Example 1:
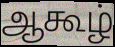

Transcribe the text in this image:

ஆகூழ்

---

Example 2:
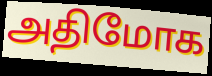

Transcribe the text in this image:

அதிமோக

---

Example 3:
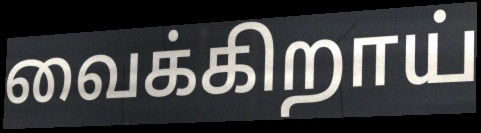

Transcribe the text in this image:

வைக்கிறாய்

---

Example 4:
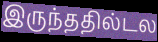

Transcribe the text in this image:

இருந்ததில்டல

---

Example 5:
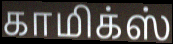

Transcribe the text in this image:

காமிக்ஸ்